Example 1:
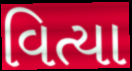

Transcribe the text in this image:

વિત્યા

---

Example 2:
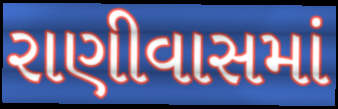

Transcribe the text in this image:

રાણીવાસમાં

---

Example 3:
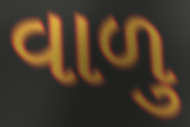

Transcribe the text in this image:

વાળુ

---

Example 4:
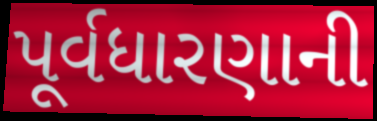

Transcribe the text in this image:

પૂર્વધારણાની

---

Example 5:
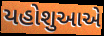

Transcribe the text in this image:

યહોશુઆએ